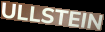
ULLSTEIN